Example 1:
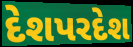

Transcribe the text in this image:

દેશપરદેશ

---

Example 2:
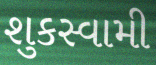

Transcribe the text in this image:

શુકસ્વામી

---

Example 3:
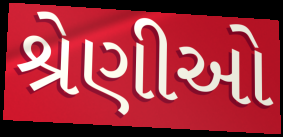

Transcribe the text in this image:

શ્રેણીઓ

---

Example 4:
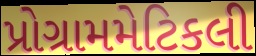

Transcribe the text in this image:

પ્રોગ્રામમેટિકલી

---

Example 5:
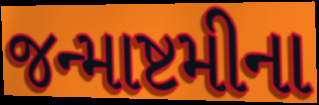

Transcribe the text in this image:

જન્માષ્ટમીના